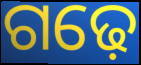
ଗଢ଼େ